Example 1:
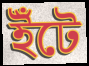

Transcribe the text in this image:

ইঁটে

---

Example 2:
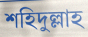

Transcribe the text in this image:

শহিদুল্লাহ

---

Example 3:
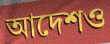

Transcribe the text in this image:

আদেশও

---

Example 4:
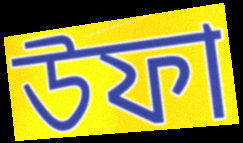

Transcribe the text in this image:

উফা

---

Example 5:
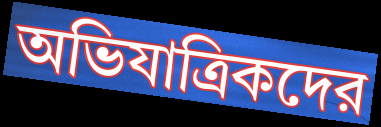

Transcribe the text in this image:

অভিযাত্রিকদের